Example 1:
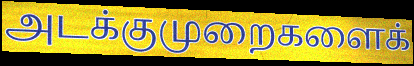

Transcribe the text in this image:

அடக்குமுறைகளைக்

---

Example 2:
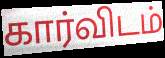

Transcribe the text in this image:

கார்விடம்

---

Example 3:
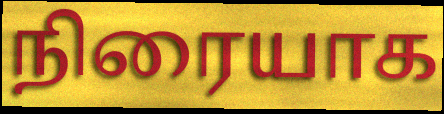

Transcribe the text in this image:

நிரையாக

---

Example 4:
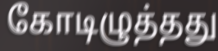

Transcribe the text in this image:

கோடிழுத்தது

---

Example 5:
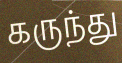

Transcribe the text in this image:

கருந்து